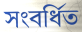
সংবর্ধিত